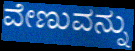
ವೇಣುವನ್ನು